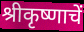
श्रीकृष्णाचें